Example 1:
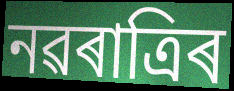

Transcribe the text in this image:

নৱৰাত্ৰিৰ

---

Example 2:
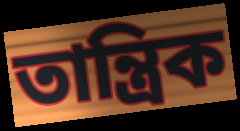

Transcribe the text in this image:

তান্ত্ৰিক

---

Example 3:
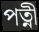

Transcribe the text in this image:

পত্নী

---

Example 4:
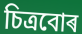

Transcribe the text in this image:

চিত্ৰবোৰ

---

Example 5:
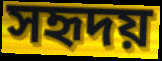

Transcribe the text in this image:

সহৃদয়